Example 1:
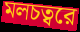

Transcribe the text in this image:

মলচত্বরে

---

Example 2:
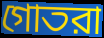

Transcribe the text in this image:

গোতরা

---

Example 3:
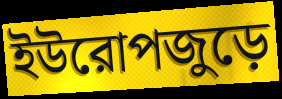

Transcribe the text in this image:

ইউরোপজুড়ে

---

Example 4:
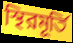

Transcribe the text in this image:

স্থিরমূর্তি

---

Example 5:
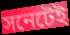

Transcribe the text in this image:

সনেটেই